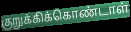
குறுக்கிக்கொண்டாள்